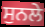
ਸੁਨਲੇ